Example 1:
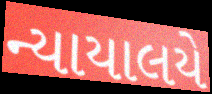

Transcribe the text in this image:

ન્યાયાલયે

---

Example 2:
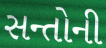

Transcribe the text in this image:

સન્તોની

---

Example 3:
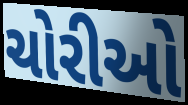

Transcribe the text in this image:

ચોરીઓ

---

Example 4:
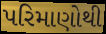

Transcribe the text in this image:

પરિમાણોથી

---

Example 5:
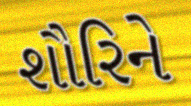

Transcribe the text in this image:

શૌરિને